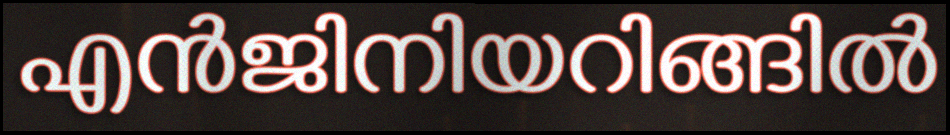
എൻജിനിയറിങ്ങിൽ